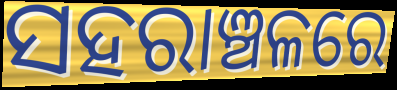
ସହରାଞ୍ଚଳରେ